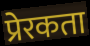
प्रेरकता